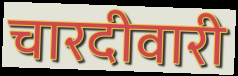
चारदीवारी